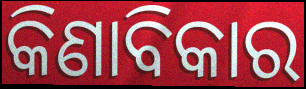
କିଣାବିକାର